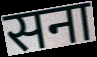
सना